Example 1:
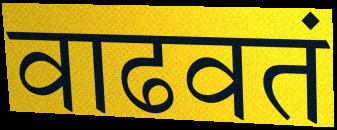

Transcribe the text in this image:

वाढवतं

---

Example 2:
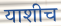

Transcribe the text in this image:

याशीच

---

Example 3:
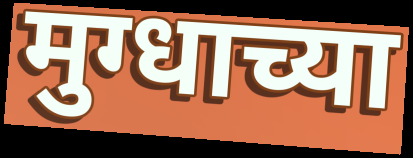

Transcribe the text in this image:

मुग्धाच्या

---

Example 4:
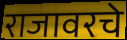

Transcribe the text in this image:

राजावरचे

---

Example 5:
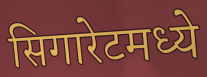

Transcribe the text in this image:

सिगारेटमध्ये